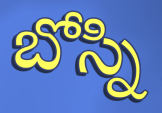
బోస్ని